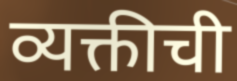
व्यक्तीची